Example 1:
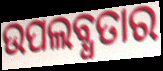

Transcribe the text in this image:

ଉପଲବ୍ଧତାର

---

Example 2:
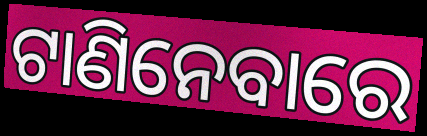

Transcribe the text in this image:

ଟାଣିନେବାରେ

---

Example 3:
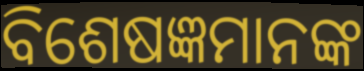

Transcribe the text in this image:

ବିଶେଷଜ୍ଞମାନଙ୍କ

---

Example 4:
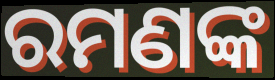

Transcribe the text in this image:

ରମଣଙ୍କ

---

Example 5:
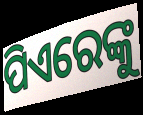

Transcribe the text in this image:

ପିଏରେଙ୍କୁ